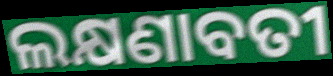
ଲକ୍ଷଣାବତୀ